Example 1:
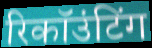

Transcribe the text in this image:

रिकॉउंटिंग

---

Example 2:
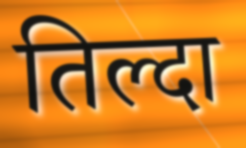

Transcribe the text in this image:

तिल्दा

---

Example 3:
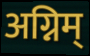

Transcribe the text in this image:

अग्निम्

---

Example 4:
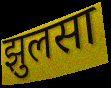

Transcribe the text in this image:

झुलसा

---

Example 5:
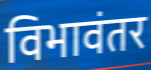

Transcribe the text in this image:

विभावंतर